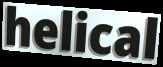
helical